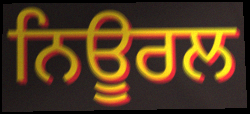
ਨਿਊਰਲ